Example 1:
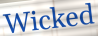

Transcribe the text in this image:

Wicked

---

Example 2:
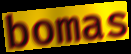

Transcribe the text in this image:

bomas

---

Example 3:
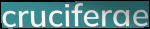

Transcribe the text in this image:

cruciferae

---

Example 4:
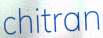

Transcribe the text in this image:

chitran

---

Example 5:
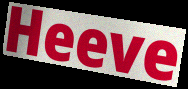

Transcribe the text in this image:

Heeve